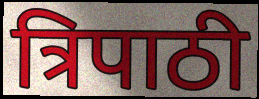
त्रिपाठी